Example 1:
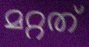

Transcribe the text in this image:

മറ്റത്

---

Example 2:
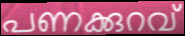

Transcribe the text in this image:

പണക്കുറവ്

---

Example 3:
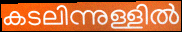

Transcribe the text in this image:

കടലിന്നുള്ളിൽ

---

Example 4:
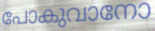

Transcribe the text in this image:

പോകുവാനോ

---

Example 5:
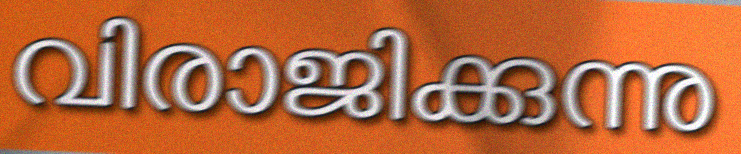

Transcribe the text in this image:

വിരാജിക്കുന്നു